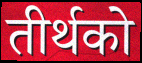
तीर्थको